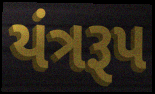
યંત્રરૂપ